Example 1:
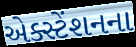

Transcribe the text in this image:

એક્સ્ટેંશનના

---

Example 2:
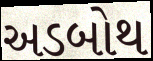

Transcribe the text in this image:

અડબોથ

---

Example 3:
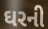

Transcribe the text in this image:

ઘરની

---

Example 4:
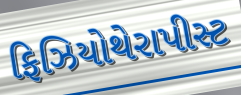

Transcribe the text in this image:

ફિઝિયોથેરાપીસ્ટ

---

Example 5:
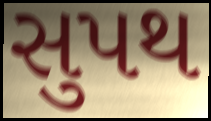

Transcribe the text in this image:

સુપથ